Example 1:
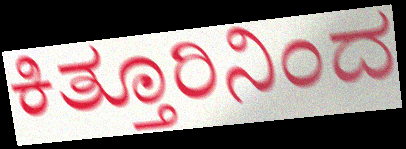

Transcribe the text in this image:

ಕಿತ್ತೂರಿನಿಂದ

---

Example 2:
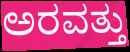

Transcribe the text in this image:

ಅರವತ್ತು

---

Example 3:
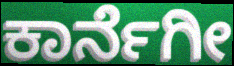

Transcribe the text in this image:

ಕಾರ್ನೆಗೀ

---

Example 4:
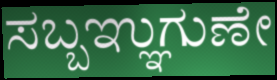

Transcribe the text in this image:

ಸಬ್ಬಞ್ಞುಗುಣೇ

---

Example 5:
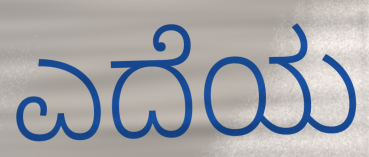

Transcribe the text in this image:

ಎದೆಯ